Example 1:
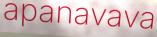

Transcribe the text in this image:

apanavava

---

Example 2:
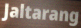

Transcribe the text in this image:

Jaltarang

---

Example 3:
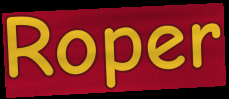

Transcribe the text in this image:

Roper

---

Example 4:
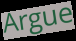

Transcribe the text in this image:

Argue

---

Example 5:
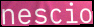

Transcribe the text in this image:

nescio